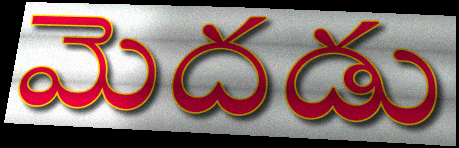
మెదడు